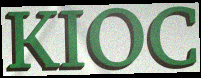
KIOC